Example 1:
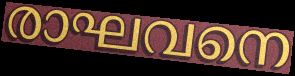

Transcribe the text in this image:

രാഘവനെ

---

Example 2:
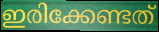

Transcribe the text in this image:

ഇരിക്കേണ്ടത്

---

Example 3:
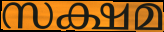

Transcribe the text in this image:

സക്ഷമ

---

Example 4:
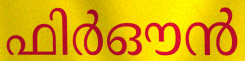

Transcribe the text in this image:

ഫിർഔൻ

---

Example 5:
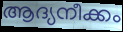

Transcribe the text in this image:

ആദ്യനീക്കം